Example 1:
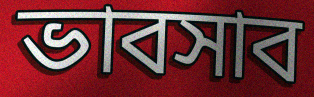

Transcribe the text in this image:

ভাবসাব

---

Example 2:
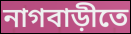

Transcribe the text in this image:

নাগবাড়ীতে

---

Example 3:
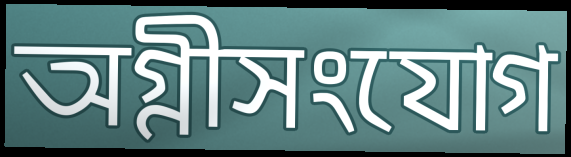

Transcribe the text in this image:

অগ্নীসংযোগ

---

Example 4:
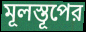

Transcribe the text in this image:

মূলস্তূপের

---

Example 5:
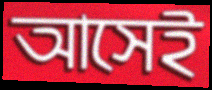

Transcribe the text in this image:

আসেই